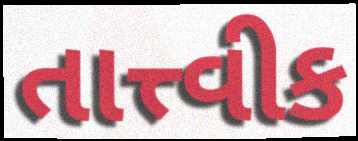
તાત્ત્વીક